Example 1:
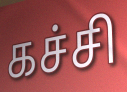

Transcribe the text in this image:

கச்சி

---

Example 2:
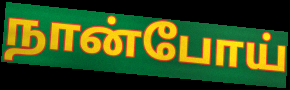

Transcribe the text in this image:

நான்போய்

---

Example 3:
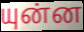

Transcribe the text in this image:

யுன்ன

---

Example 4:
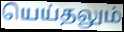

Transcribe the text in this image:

யெய்தலும்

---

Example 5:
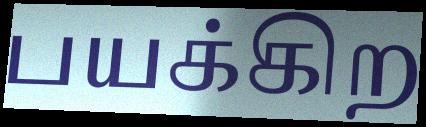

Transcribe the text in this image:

பயக்கிற